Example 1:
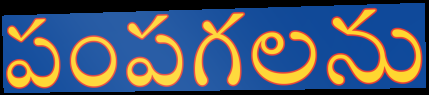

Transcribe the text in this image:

పంపగలను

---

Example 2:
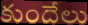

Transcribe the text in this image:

కుందేలు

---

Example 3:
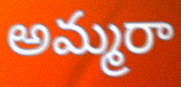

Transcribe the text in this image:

అమ్మరా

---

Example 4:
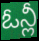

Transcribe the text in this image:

ఓన్లీ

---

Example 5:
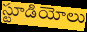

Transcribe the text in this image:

స్టూడియోలు